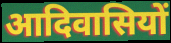
आदिवासियों